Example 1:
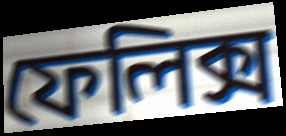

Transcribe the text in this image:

ফেলিক্স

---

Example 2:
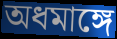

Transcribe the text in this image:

অধমাঙ্গে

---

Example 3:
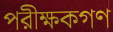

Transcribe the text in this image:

পরীক্ষকগণ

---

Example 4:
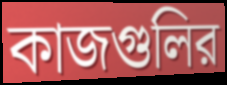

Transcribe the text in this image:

কাজগুলির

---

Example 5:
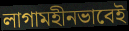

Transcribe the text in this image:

লাগামহীনভাবেই